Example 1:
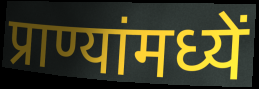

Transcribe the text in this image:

प्राण्यांमध्यें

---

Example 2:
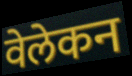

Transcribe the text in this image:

वेलेकन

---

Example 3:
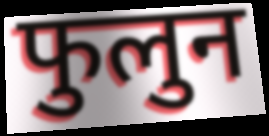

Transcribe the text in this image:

फुलुन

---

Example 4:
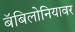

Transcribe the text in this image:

बॅबिलोनियावर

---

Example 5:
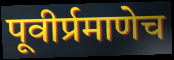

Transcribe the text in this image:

पूवीर्प्रमाणेच